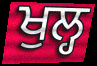
ਖੁਲ੍ਹ